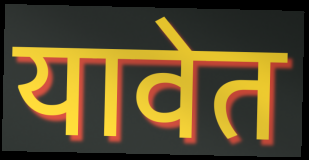
यावेत